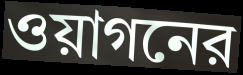
ওয়াগনের